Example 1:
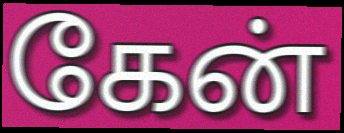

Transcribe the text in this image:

கேன்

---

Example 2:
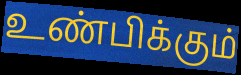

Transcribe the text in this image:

உண்பிக்கும்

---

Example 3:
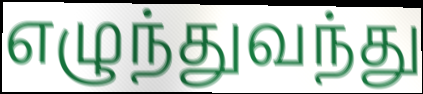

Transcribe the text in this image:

எழுந்துவந்து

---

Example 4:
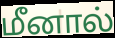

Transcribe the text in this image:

மீனால்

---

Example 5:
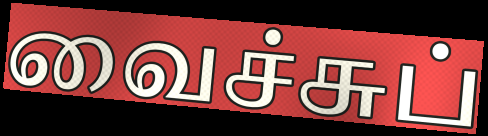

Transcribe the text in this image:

வைச்சுப்